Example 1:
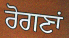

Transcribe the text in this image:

ਰੋਗਣਾਂ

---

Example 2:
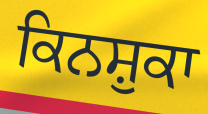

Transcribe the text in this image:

ਕਿਨਸ਼ੁਕਾ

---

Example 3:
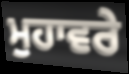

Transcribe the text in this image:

ਮੁਹਾਵਰੇ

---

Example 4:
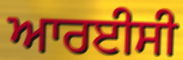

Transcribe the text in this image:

ਆਰਈਸੀ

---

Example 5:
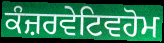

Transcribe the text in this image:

ਕੰਜ਼ਰਵੇਟਿਵਹੋਮ